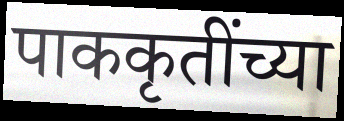
पाककृतींच्या